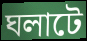
ঘলাটে